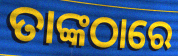
ତାଙ୍କଠାରେ